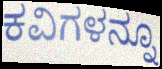
ಕವಿಗಳನ್ನೂ